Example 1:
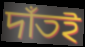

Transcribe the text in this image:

দাঁতই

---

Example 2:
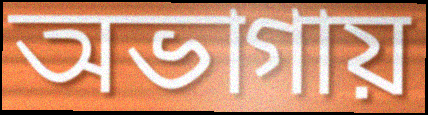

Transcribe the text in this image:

অভাগায়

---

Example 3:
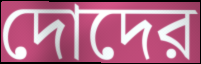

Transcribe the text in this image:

দোদের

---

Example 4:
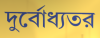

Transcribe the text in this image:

দুর্বোধ্যতর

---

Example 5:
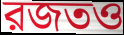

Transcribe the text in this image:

রজতও